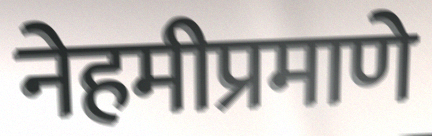
नेहमीप्रमाणे